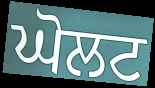
ਘੋਲਟ